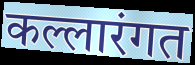
कल्लारंगत